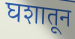
घशातून